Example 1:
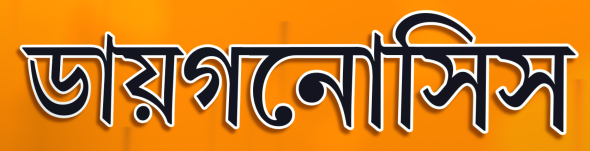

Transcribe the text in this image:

ডায়গনোসিস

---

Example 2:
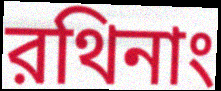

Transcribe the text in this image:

রথিনাং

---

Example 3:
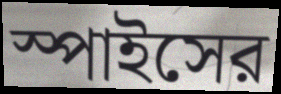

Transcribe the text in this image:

স্পাইসের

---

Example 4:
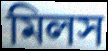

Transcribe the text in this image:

মিলস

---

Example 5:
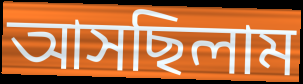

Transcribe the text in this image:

আসছিলাম